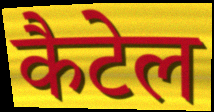
कैटेल